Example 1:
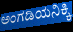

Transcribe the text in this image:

ಅಂಗಡಿಯನಿಕ್ಕಿ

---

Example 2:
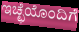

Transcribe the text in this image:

ಇಚ್ಛೆಯೊಂದಿಗೆ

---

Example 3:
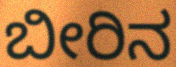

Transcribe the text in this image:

ಬೀರಿನ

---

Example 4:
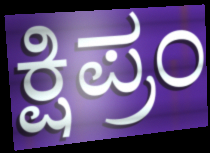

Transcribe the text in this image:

ಕ್ಷಿಪ್ರಂ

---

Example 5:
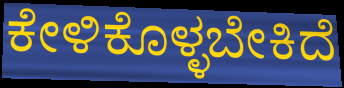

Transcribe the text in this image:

ಕೇಳಿಕೊಳ್ಳಬೇಕಿದೆ